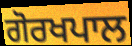
ਗੋਰਖਪਾਲ